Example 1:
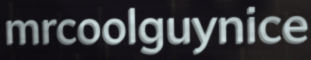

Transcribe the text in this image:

mrcoolguynice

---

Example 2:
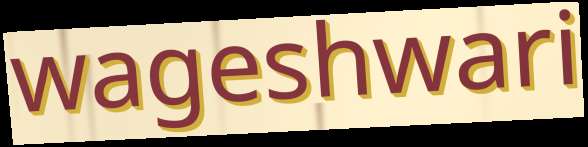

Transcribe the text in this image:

wageshwari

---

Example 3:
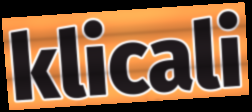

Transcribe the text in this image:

klicali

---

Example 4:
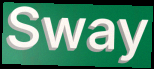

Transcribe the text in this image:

Sway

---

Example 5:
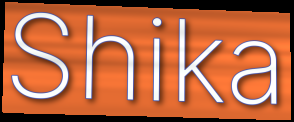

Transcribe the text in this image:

Shika